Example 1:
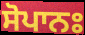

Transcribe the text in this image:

ਸੋਪਾਨਃ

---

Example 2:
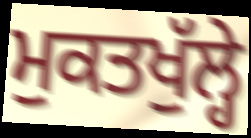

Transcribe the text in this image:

ਮੁਕਤਖੁੱਲ੍ਹੇ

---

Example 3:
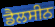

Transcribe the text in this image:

ਡੈਲਸੀਨ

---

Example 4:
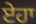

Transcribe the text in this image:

ਏਹਾ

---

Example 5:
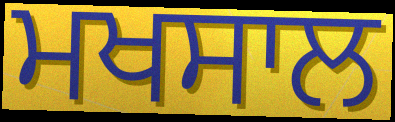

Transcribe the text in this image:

ਮਖਸਾਲ